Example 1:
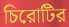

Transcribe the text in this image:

চিরোটির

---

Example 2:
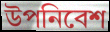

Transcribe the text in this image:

উপনিবেশ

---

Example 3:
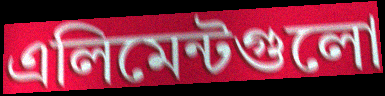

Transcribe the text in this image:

এলিমেন্টগুলো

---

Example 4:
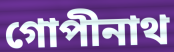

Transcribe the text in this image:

গোপীনাথ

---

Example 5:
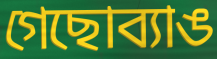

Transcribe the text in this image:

গেছোব্যাঙ